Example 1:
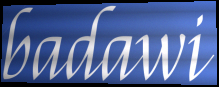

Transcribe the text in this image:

badawi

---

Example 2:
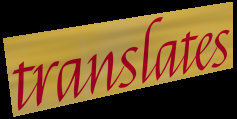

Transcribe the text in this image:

translates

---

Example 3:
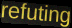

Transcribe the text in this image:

refuting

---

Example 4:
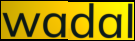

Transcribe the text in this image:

wadal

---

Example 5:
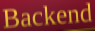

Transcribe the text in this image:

Backend